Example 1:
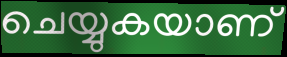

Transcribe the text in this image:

ചെയ്യുകയാണ്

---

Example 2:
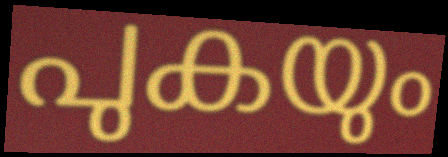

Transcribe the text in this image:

പുകയും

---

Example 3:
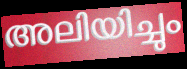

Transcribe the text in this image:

അലിയിച്ചും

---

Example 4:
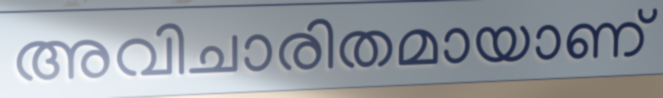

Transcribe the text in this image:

അവിചാരിതമായാണ്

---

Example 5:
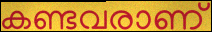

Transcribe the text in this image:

കണ്ടവരാണ്